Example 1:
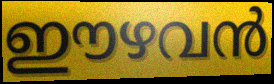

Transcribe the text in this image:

ഈഴവൻ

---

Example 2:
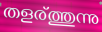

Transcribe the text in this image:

തളര്ത്തുന്നു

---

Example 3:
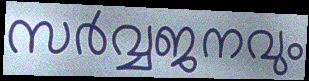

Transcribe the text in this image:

സർവ്വജനവും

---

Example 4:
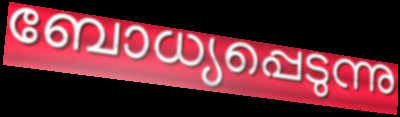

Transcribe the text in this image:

ബോധ്യപ്പെടുന്നു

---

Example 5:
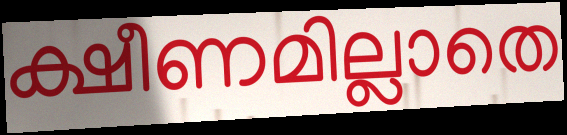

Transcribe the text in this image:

ക്ഷീണമില്ലാതെ